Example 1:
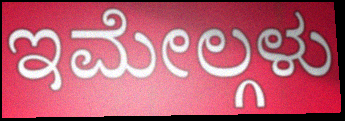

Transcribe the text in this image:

ಇಮೇಲ್ಗಳು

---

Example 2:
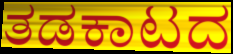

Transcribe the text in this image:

ತಡಕಾಟದ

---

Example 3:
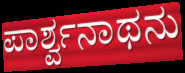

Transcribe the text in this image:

ಪಾರ್ಶ್ವನಾಥನು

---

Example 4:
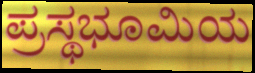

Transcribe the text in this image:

ಪ್ರಸ್ಥಭೂಮಿಯ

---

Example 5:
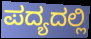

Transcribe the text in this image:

ಪದ್ಯದಲ್ಲಿ